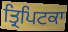
ਤ੍ਰਿਪਿਟਕਾ